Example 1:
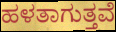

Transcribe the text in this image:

ಹಳತಾಗುತ್ತವೆ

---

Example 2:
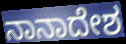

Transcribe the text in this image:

ನಾನಾದೇಶ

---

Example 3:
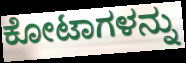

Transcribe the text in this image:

ಕೋಟಾಗಳನ್ನು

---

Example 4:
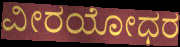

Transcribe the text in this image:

ವೀರಯೋಧರ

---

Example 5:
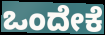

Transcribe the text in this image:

ಒಂದೇಕೆ